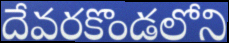
దేవరకొండలోని